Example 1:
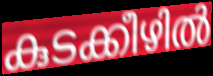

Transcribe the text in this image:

കുടക്കീഴിൽ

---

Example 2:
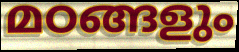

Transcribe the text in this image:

മഠങ്ങളും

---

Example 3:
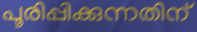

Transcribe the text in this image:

പൂരിപ്പിക്കുന്നതിന്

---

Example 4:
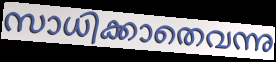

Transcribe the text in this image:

സാധിക്കാതെവന്നു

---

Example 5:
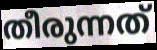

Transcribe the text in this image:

തീരുന്നത്